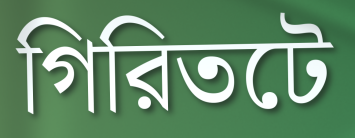
গিরিতটে